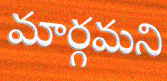
మార్గమని